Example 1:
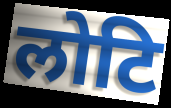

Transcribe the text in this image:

लोटि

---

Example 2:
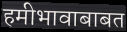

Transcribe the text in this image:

हमीभावाबाबत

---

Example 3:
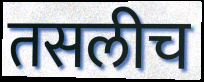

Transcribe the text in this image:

तसलीच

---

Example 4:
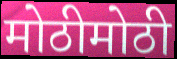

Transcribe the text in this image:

मोठीमोठी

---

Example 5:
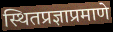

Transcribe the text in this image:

स्थितप्रज्ञाप्रमाणे